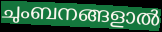
ചുംബനങ്ങളാൽ